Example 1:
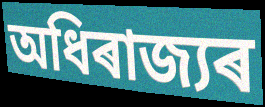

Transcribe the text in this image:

অধিৰাজ্যৰ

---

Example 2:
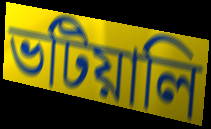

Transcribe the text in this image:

ভটিয়ালি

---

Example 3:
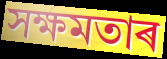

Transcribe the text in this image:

সক্ষমতাৰ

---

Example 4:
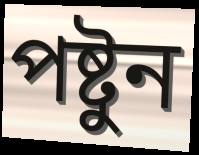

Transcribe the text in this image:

পষ্টুন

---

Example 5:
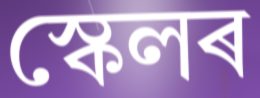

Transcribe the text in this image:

স্কেলৰ